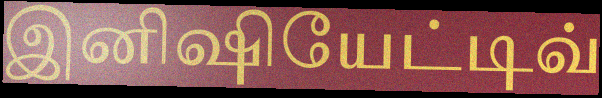
இனிஷியேட்டிவ்